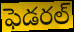
ఫెడరల్